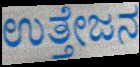
ಉತ್ತೇಜನ